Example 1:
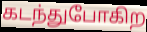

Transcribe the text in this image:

கடந்துபோகிற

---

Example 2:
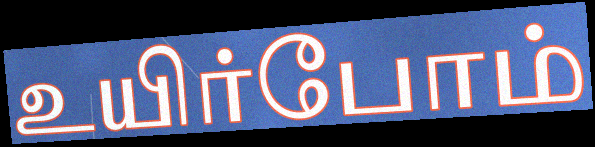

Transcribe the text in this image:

உயிர்போம்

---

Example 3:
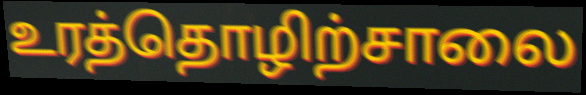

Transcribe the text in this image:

உரத்தொழிற்சாலை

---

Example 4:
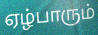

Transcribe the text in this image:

ஏழ்பாரும்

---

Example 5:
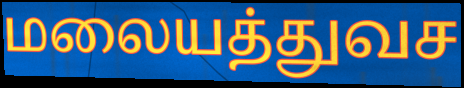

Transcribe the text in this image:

மலையத்துவச